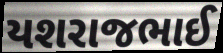
યશરાજભાઈ